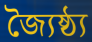
জ্যৈষ্ঠ্য